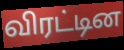
விரட்டின